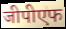
जीपीएफ